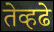
तेव्हढे